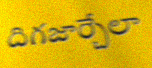
దిగజార్చేలా